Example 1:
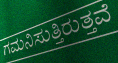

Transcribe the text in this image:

ಗಮನಿಸುತ್ತಿರುತ್ತವೆ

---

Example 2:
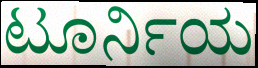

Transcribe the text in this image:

ಟೂರ್ನಿಯ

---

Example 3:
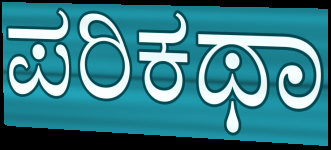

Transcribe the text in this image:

ಪರಿಕಥಾ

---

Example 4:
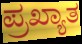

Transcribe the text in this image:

ಪ್ರಖ್ಯಾತ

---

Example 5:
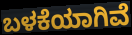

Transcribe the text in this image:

ಬಳಕೆಯಾಗಿವೆ